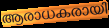
ആരാധകരായി